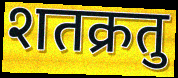
शतक्रतु